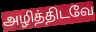
அழித்திடவே